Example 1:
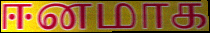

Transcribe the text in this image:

ஈனமாக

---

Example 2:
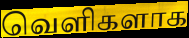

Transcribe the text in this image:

வெளிகளாக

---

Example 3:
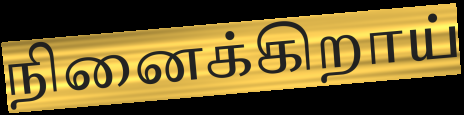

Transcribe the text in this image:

நினைக்கிறாய்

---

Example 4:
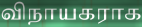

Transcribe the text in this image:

விநாயகராக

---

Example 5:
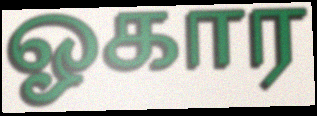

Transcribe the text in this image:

ஓகார